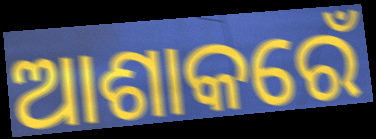
ଆଶାକରେଁ